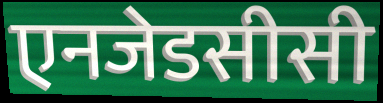
एनजेडसीसी